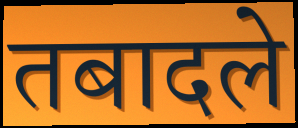
तबादले